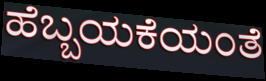
ಹೆಬ್ಬಯಕೆಯಂತೆ